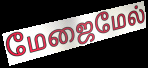
மேஜைமேல்